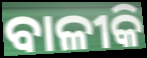
ବାଳୀକି